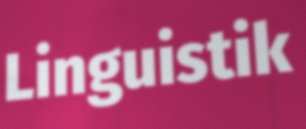
Linguistik